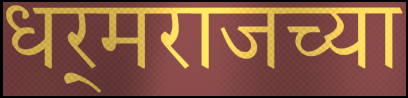
धर्मराजच्या